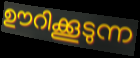
ഊറിക്കൂടുന്ന